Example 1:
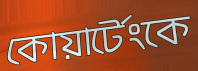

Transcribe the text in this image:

কোয়ার্টেংকে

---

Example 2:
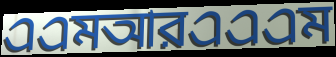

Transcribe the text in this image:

এএমআরএএএম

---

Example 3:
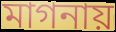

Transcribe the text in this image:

মাগনায়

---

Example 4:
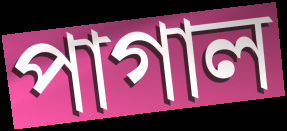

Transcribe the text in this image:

পাগাল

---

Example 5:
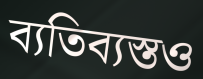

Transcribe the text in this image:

ব্যতিব্যস্তও